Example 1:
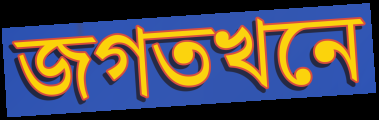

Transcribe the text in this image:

জগতখনে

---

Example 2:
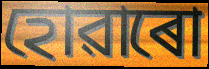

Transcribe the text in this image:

হোৱাৰো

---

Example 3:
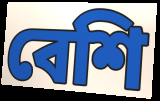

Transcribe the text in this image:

বেশি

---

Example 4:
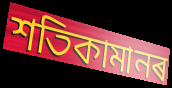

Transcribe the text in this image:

শতিকামানৰ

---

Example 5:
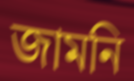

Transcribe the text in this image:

জামনি